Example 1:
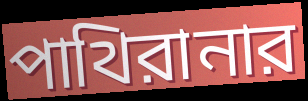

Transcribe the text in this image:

পাথিরানার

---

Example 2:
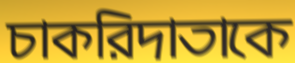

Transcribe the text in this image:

চাকরিদাতাকে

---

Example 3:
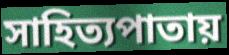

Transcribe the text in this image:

সাহিত্যপাতায়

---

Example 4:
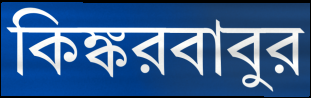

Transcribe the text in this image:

কিঙ্করবাবুর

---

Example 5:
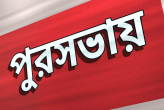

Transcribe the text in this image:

পুরসভায়